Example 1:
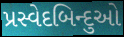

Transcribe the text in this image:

પ્રસ્વેદબિન્દુઓ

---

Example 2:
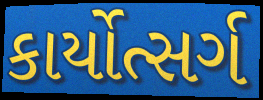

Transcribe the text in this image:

કાર્યોત્સર્ગ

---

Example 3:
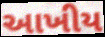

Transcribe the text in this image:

આખીય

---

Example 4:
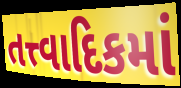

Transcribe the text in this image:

તત્ત્વાદિકમાં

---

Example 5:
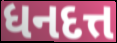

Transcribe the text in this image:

ધનદત્ત